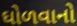
ઘોળવાનો